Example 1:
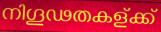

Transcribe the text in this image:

നിഗൂഢതകള്ക്ക്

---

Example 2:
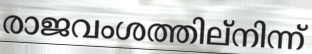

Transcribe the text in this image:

രാജവംശത്തില്നിന്ന്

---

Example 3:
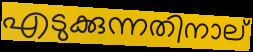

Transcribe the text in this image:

എടുക്കുന്നതിനാല്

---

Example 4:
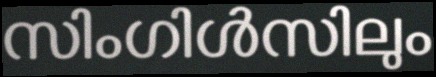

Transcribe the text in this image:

സിംഗിൾസിലും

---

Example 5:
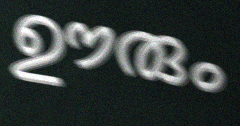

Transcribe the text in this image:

ഊരും